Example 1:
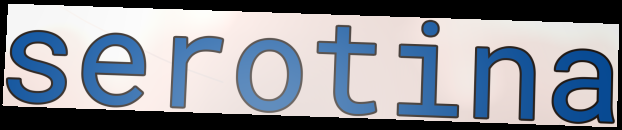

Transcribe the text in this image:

serotina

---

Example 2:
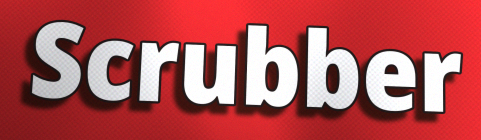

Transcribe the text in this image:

Scrubber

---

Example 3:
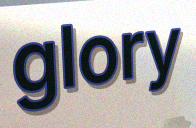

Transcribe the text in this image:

glory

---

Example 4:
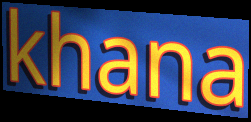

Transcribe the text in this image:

khana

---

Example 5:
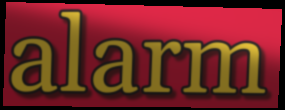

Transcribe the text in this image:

alarm